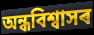
অন্ধবিশ্বাসৰ